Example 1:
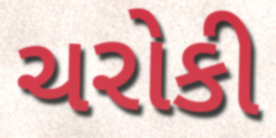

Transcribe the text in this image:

ચરોકી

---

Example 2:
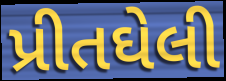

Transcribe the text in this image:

પ્રીતઘેલી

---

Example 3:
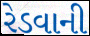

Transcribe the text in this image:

રેડવાની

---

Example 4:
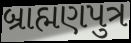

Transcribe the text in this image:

બ્રાહ્મણપુત્ર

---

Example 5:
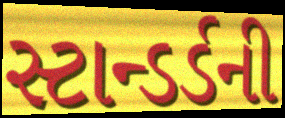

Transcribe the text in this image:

સ્ટાન્ડર્ડની